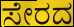
ಸೇರದ